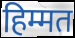
हिम्‍मत